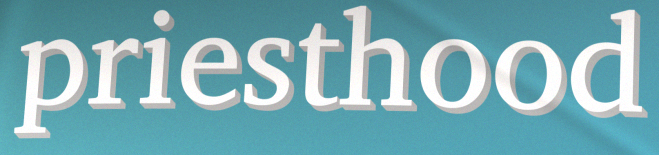
priesthood